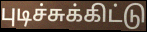
புடிச்சுக்கிட்டு